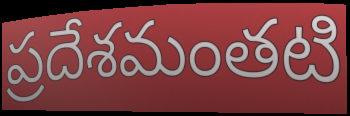
ప్రదేశమంతటి